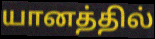
யானத்தில்